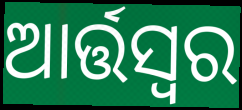
ଆର୍ତ୍ତସ୍ୱର